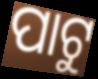
ପାଟୁ